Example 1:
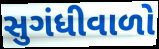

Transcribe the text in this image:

સુગંધીવાળો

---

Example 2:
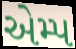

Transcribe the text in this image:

એમ્પ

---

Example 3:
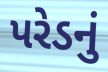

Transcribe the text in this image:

પરેડનું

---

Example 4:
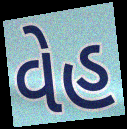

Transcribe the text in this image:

વેહ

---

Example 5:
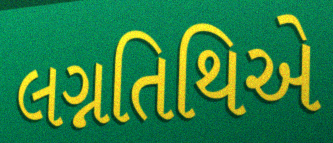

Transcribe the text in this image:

લગ્નતિથિએ